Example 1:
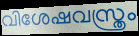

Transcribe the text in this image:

വിശേഷവസ്ത്രം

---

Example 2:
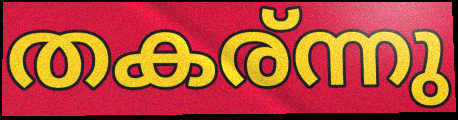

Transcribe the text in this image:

തകര്ന്നു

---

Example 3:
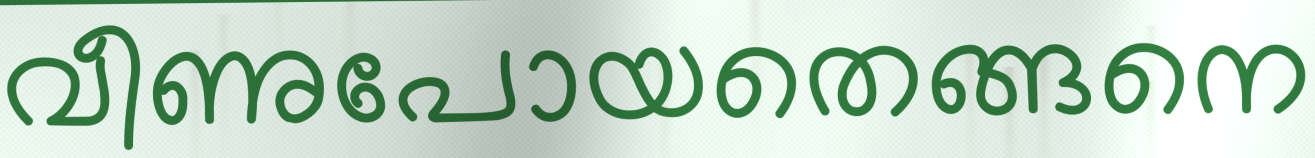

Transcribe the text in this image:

വീണുപോയതെങ്ങനെ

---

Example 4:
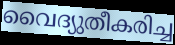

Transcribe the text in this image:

വൈദ്യുതീകരിച്ച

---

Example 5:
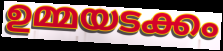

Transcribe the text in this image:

ഉമ്മയടക്കം